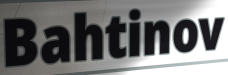
Bahtinov